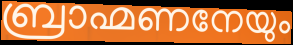
ബ്രാഹ്മണനേയും